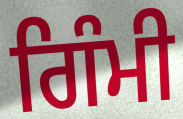
ਗਿੰਮੀ